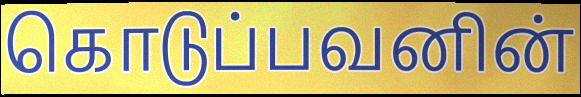
கொடுப்பவனின்